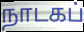
நாடகப்